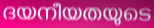
ദയനീയതയുടെ